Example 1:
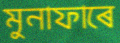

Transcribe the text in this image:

মুনাফাৰে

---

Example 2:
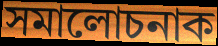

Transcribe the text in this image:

সমালোচনাক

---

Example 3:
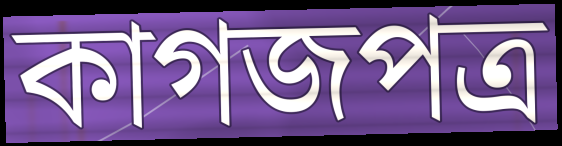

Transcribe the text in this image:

কাগজপত্ৰ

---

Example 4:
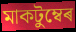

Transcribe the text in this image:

মাকটুম্বেৰ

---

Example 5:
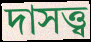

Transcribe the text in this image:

দাসত্ত্ব